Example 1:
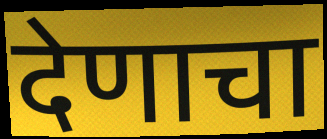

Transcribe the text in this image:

देणाचा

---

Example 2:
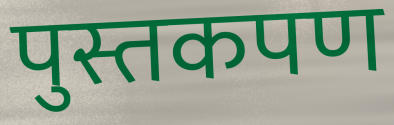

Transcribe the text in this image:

पुस्तकपण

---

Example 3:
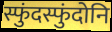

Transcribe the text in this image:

स्फुंदस्फुंदोनि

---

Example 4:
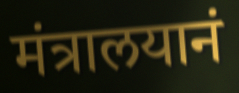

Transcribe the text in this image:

मंत्रालयानं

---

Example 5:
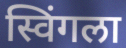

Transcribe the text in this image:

स्विंगला